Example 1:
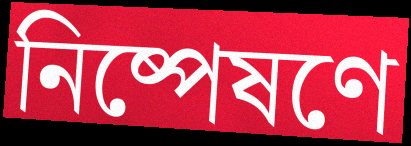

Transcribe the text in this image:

নিষ্পেষণে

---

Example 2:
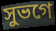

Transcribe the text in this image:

সুভগে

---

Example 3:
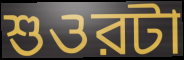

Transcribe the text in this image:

শুওরটা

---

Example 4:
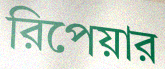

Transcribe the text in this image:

রিপেয়ার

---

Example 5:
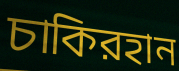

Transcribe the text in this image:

চাকিরহান